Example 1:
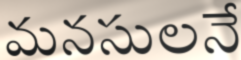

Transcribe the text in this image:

మనసులనే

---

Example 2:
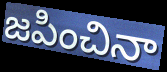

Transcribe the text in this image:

జపించినా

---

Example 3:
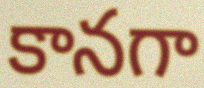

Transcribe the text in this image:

కానగా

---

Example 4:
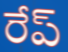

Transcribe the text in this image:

రేప్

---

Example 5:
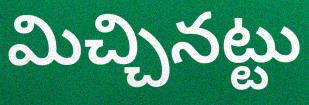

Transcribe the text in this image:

మిచ్చినట్టు